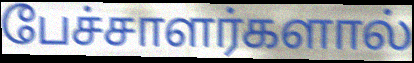
பேச்சாளர்களால்